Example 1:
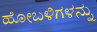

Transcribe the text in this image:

ಹೋಬಳಿಗಳನ್ನು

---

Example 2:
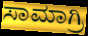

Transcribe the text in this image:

ಸಾಮಾಗ್ರಿ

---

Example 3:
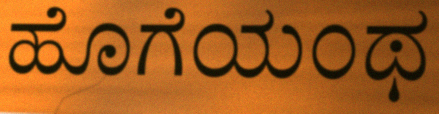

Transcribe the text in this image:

ಹೊಗೆಯಂಥ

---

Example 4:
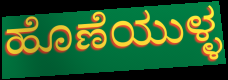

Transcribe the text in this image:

ಹೊಣೆಯುಳ್ಳ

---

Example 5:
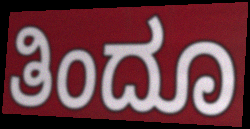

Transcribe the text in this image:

ತಿಂದೂ